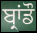
ਬ੍ਰਾਂਡੌ